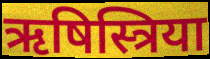
ऋषिस्त्रिया